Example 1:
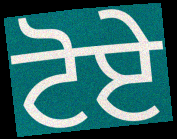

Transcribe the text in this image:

ਟੋਏ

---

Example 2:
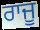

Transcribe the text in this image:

ਰਾਜੂ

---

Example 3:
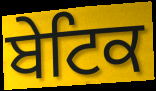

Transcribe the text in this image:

ਬੇਟਿਕ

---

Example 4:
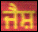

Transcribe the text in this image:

ਜੈਸ਼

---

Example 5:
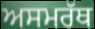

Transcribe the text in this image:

ਅਸਮਰੱਥ